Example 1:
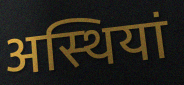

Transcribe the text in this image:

अस्थियां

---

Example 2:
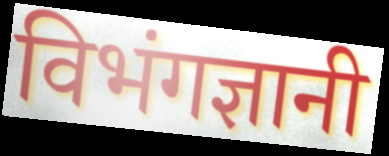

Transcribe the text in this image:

विभंगज्ञानी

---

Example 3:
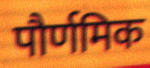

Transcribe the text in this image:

पौर्णमिक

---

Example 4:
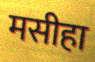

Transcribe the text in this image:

मसीहा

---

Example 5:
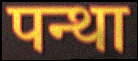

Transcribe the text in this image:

पन्‍था